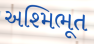
અશ્મિભૂત